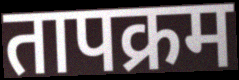
तापक्रम